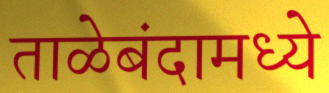
ताळेबंदामध्ये